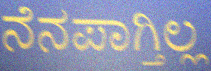
ನೆನಪಾಗ್ತಿಲ್ಲ